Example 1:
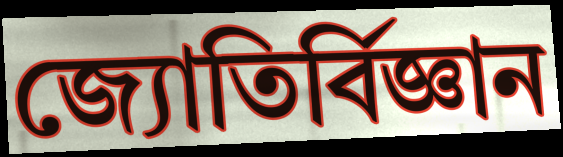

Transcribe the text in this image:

জ্যোতিৰ্বিজ্ঞান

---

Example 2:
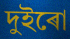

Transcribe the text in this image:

দুইৰো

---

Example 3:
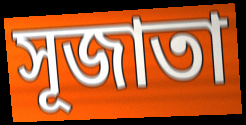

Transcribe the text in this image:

সূজাতা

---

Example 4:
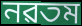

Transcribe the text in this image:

নৱতম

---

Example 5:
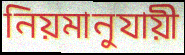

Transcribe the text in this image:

নিয়মানুযায়ী